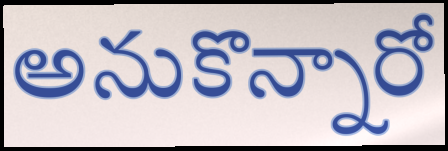
అనుకొన్నారో